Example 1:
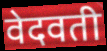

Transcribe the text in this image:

वेदवती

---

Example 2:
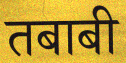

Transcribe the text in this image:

तबाबी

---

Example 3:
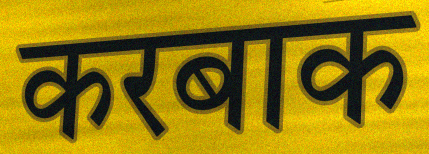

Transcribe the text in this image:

करबाक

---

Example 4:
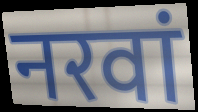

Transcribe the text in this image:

नरवां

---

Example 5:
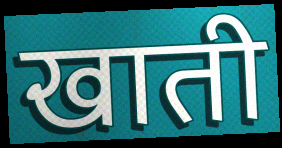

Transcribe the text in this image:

खाती